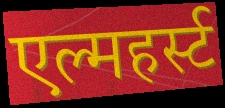
एल्महर्स्ट